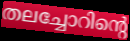
തലച്ചോറിന്റെ